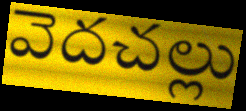
వెదచల్లు